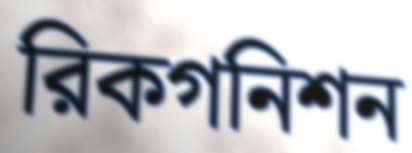
রিকগনিশন